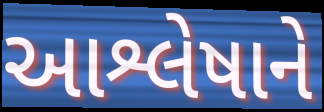
આશ્લેષાને